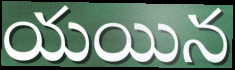
యయిన